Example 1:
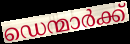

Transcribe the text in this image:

ഡെന്മാർക്ക്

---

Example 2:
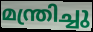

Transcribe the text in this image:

മന്ത്രിച്ചു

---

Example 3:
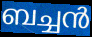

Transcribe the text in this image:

ബച്ചൻ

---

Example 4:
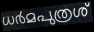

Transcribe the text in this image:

ധർമപുത്രശ്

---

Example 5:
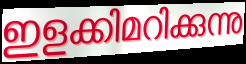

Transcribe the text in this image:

ഇളക്കിമറിക്കുന്നു